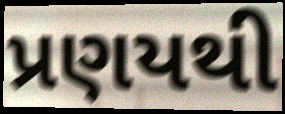
પ્રણયથી